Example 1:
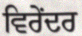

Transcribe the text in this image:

ਵਿਰੇਂਦਰ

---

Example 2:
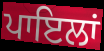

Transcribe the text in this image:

ਪਾਇਲਾਂ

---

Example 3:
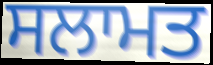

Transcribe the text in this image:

ਸਲਾਮਤ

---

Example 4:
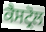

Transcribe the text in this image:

ਕੈਸਟ੍ਰੋਲ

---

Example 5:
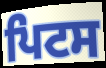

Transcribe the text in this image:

ਪਿਟਸ